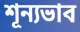
শূন্যভাব